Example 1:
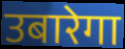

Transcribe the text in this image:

उबारेगा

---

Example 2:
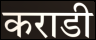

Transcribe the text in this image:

कराडी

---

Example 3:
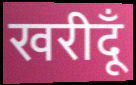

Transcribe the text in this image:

खरीदूँ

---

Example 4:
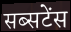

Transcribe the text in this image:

सब्सटेंस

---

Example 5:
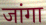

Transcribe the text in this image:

जांगा